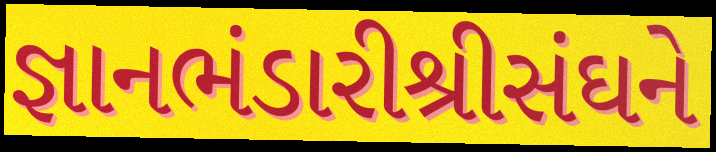
જ્ઞાનભંડારીશ્રીસંઘને